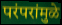
परंपरांमुळे